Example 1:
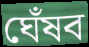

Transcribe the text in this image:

ঘেঁষব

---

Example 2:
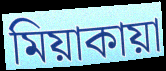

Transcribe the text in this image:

মিয়াকায়া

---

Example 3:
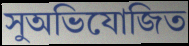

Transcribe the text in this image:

সুঅভিযোজিত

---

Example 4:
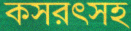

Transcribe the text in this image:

কসরৎসহ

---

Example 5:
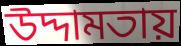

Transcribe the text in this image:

উদ্দামতায়